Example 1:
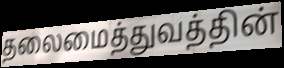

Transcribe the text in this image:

தலைமைத்துவத்தின்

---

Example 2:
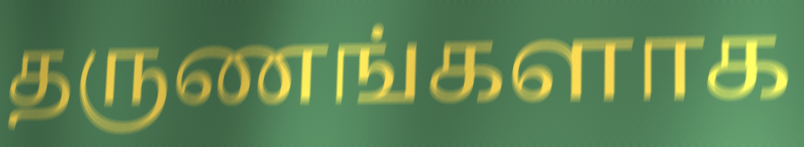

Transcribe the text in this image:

தருணங்களாக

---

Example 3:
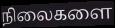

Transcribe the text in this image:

நிலைகளை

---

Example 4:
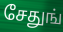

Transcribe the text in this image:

சேதுங்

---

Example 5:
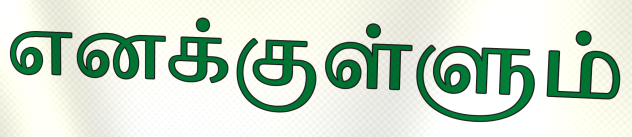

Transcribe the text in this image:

எனக்குள்ளும்